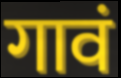
गावं